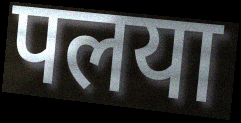
पलया